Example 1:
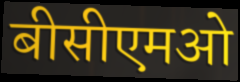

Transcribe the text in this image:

बीसीएमओ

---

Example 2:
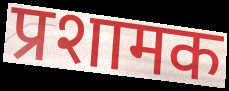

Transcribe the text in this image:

प्रशामक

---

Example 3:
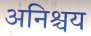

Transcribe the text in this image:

अनिश्चय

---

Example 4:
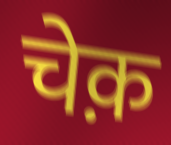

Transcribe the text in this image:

चेक़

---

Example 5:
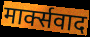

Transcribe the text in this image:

मार्क्सवाद